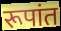
रूपांत